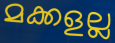
മക്കളല്ല